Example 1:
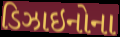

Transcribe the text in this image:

ડિઝાઇનોના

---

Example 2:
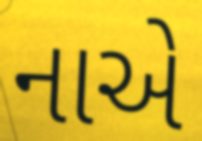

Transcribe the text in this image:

નાએ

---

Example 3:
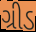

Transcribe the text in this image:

ગ્રીડ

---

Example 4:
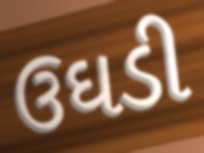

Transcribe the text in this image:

ઉઘડી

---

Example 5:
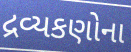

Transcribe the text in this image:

દ્રવ્યકણોના